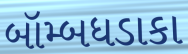
બૉમ્બધડાકા